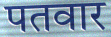
पतवार